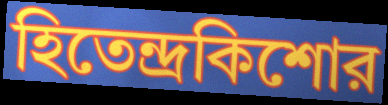
হিতেন্দ্রকিশোর